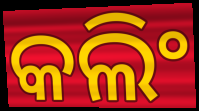
କଲିଂ